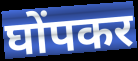
घोंपकर